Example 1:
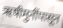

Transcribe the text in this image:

ऋषीमुनींपासून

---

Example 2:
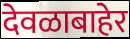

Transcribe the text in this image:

देवळाबाहेर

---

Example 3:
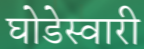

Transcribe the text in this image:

घोडेस्वारी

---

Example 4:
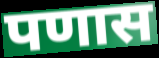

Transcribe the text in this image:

पणास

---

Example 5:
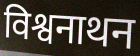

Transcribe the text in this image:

विश्वनाथन